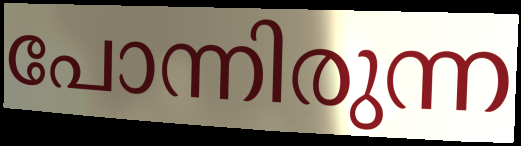
പോന്നിരുന്ന